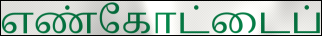
எண்கோட்டைப்